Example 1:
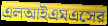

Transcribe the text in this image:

এলআইএমএসের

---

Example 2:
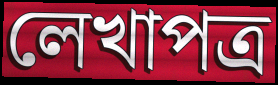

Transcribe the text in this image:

লেখাপত্র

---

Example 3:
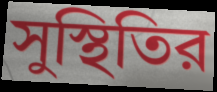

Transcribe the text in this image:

সুস্থিতির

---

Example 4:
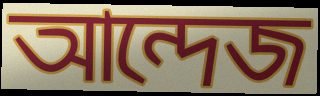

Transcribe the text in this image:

আন্দেজ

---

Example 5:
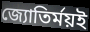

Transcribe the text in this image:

জ্যোতির্ময়ই